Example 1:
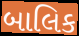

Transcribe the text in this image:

બાલિક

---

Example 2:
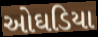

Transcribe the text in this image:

ઓઘડિયા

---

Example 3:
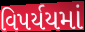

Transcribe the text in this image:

વિપર્યયમાં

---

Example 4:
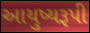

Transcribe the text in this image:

આયુષ્યરૂપી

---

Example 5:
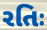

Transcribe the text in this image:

રતિઃ